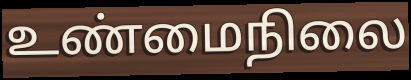
உண்மைநிலை